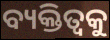
ବ୍ୟକ୍ତିତ୍ଵକୁ